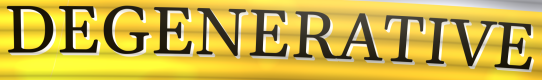
DEGENERATIVE